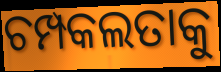
ଚମ୍ପକଲତାକୁ